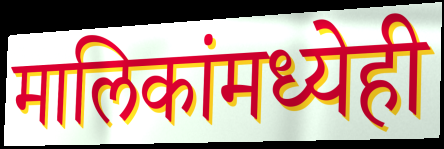
मालिकांमध्येही